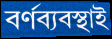
বর্ণব্যবস্থাই